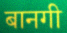
बानगी